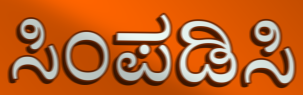
ಸಿಂಪಡಿಸಿ